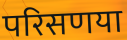
परिसणया